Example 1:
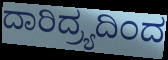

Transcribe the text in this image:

ದಾರಿದ್ರ್ಯದಿಂದ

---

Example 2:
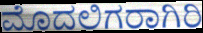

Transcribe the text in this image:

ಮೊದಲಿಗರಾಗಿರಿ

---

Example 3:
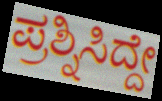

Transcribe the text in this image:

ಪ್ರಶ್ನಿಸಿದ್ದೇ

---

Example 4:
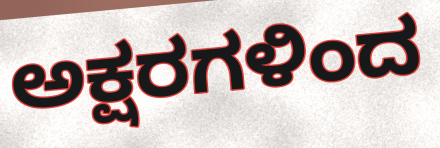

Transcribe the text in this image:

ಅಕ್ಷರಗಳಿಂದ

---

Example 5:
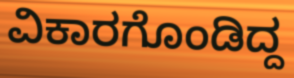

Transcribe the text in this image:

ವಿಕಾರಗೊಂಡಿದ್ದ